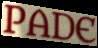
PADE